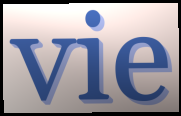
vie